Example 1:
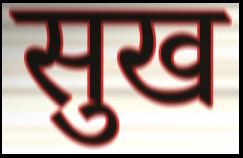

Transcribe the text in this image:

सुख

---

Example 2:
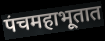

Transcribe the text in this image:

पंचमहाभूतात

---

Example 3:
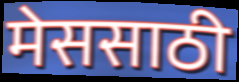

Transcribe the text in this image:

मेससाठी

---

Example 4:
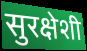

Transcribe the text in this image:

सुरक्षेशी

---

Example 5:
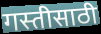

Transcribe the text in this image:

गस्तीसाठी